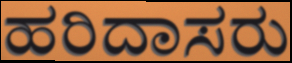
ಹರಿದಾಸರು